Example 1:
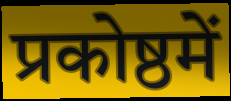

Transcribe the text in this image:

प्रकोष्ठमें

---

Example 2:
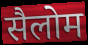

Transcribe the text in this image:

सैलोम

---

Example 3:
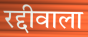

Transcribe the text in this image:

रद्दीवाला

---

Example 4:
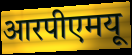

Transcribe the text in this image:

आरपीएमयू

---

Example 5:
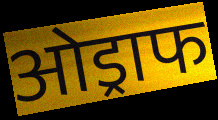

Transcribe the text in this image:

ओड्राफ